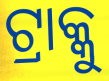
ଟ୍ରାକ୍କୁ